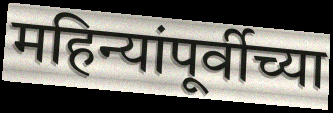
महिन्यांपूर्वीच्या